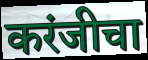
करंजीचा